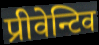
प्रीवेन्टिव